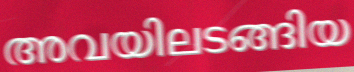
അവയിലടങ്ങിയ